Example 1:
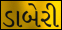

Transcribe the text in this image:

ડાબેરી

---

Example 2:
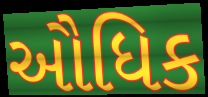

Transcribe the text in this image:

ઔધિક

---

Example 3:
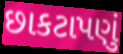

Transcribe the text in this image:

છાકટાપણું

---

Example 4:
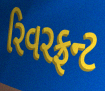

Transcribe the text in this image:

રિવરફ્રન્ટ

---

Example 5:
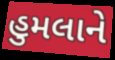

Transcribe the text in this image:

હુમલાને